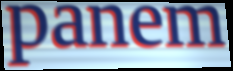
panem